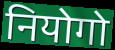
नियोगो